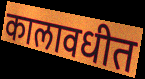
कालावधीत